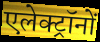
एलेक्ट्रॉनों